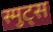
स्मुट्स